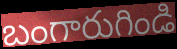
బంగారుగిండి